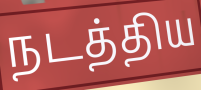
நடத்திய